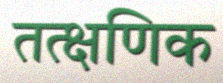
तत्क्षणिक